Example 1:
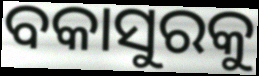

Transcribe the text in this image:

ବକାସୁରକୁ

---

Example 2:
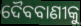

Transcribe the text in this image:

ଦୈବବାଣୀକୁ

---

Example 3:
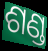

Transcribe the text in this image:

ଶଣ୍ଡ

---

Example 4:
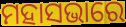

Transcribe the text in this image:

ମହାସଭାରେ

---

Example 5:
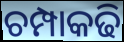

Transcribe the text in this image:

ଚମ୍ପାକଢି